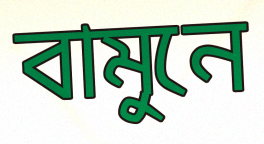
বামুনে